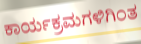
ಕಾರ್ಯಕ್ರಮಗಳಿಗಿಂತ